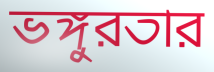
ভঙ্গুরতার